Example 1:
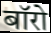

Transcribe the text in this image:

बॉरो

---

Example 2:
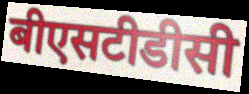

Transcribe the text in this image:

बीएसटीडीसी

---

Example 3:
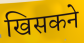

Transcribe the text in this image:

खिसकने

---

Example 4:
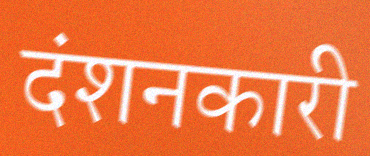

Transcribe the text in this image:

दंशनकारी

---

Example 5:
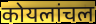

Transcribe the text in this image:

कोयलांचल